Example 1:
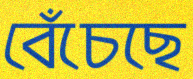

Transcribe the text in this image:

বেঁচেছে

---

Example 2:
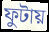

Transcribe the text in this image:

ফুটায়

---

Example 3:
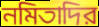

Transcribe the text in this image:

নমিতাদির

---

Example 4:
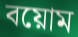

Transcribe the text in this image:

বয়োম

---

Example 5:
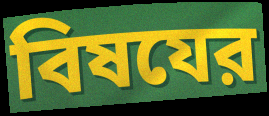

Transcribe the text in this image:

বিষযের